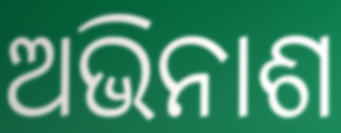
ଅଭିନାଶ